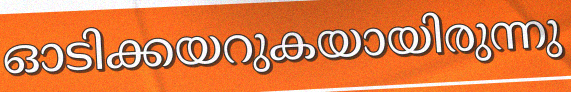
ഓടിക്കയറുകയായിരുന്നു